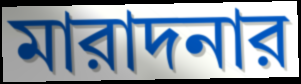
মারাদনার